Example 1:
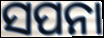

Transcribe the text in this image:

ସପନା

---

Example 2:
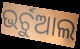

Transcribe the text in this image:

ଭର୍ଚୁଆଲ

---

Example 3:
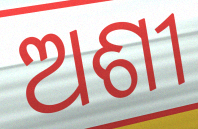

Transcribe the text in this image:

ଅଶୀ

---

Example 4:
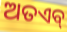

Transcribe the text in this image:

ଅତଏବ୍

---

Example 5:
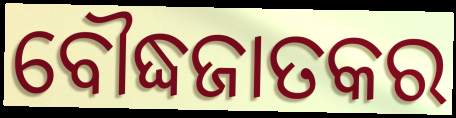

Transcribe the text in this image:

ବୌଦ୍ଧଜାତକର